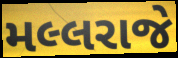
મલ્લરાજે